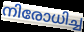
നിരോധിച്ച